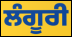
ਲੰਗੂਰੀ